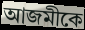
আজমীকে